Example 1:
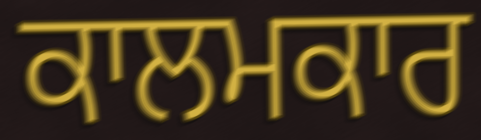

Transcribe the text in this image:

ਕਾਲਮਕਾਰ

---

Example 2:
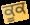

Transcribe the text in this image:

ਕੂਕ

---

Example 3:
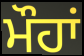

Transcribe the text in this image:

ਮੌਹਾਂ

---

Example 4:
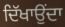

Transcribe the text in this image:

ਦਿੱਖਾਉਂਦਾ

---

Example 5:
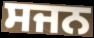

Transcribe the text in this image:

ਸਜਨ